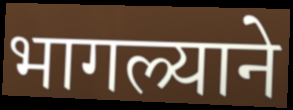
भागल्याने